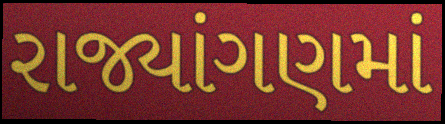
રાજ્યાંગણમાં